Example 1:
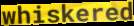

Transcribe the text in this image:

whiskered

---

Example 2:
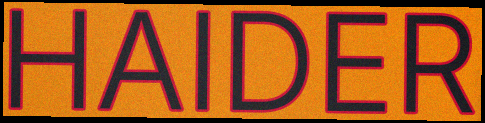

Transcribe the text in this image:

HAIDER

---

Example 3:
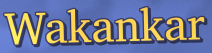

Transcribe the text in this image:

Wakankar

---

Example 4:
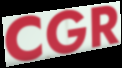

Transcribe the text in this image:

CGR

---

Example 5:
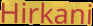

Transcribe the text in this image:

Hirkani